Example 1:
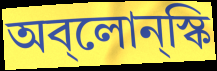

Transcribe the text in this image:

অব্‌লোন্‌স্কি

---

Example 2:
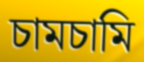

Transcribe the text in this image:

চামচামি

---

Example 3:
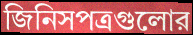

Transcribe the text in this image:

জিনিসপত্রগুলোর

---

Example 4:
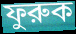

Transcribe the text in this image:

ফুরুক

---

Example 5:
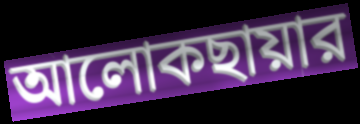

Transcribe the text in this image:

আলোকছায়ার